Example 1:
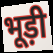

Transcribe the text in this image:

भूड़ी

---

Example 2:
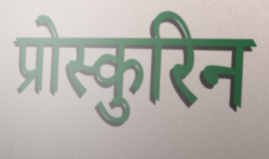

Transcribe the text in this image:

प्रोस्कुरिन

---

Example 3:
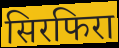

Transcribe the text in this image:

सिरफिरा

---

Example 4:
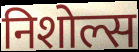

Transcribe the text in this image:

निशोल्स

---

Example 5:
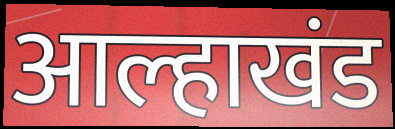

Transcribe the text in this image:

आल्हाखंड